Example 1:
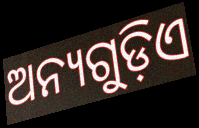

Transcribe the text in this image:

ଅନ୍ୟଗୁଡ଼ିଏ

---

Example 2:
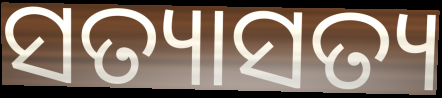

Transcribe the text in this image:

ସତ୍ୟାସତ୍ୟ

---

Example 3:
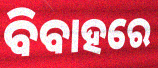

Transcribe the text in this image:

ବିବାହରେ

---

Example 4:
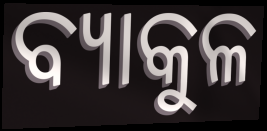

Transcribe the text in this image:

ବ୍ୟାକୁଳ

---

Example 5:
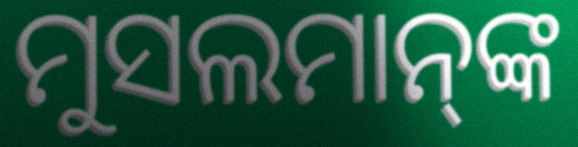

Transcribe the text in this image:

ମୁସଲମାନ୍‍ଙ୍କ